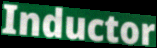
Inductor